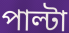
পাল্টা